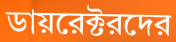
ডায়রেক্টরদের